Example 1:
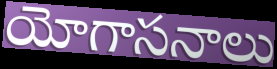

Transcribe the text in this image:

యోగాసనాలు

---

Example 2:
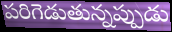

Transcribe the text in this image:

పరిగెడుతున్నప్పుడు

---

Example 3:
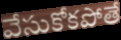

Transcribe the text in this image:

వేసుకోకపోతే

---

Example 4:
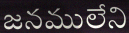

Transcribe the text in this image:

జనములేని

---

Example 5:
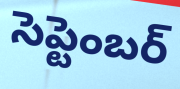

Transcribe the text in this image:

సెప్టెంబర్